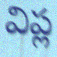
విప్ల